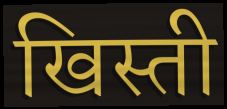
खिस्ती